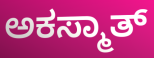
ಅಕಸ್ಮಾತ್